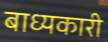
बाध्‍यकारी